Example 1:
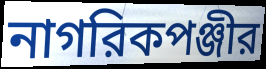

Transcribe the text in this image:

নাগরিকপঞ্জীর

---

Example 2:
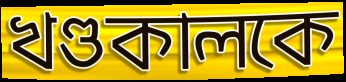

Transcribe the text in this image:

খণ্ডকালকে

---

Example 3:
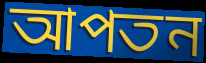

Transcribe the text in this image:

আপতন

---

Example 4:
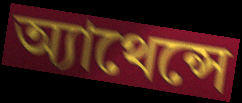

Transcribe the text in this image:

অ্যাথেন্সে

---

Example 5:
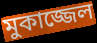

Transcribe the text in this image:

মুকাজ্জেল